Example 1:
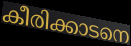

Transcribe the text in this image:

കീരിക്കാടനെ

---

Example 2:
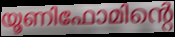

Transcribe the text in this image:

യൂണിഫോമിന്റെ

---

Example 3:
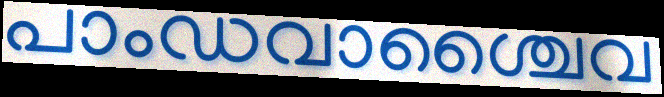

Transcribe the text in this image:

പാംഡവാശ്ചൈവ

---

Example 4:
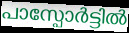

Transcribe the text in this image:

പാസ്പോർട്ടിൽ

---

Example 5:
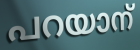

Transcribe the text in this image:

പറയാന്